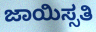
ಜಾಯಿಸ್ಸತಿ